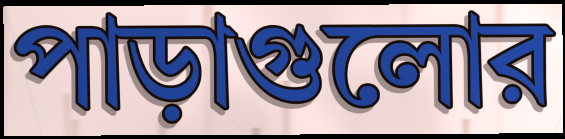
পাড়াগুলোর